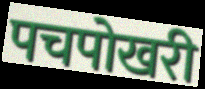
पचपोखरी